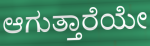
ಆಗುತ್ತಾರೆಯೇ